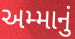
અમ્માનું